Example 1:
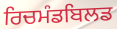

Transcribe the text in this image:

ਰਿਚਮੰਡਬਿਲਡ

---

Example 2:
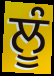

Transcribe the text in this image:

ਲੂੰ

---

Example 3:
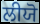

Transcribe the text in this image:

ਲੀਯੋ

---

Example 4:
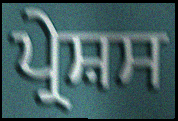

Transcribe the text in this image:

ਪ੍ਰੇਸ਼ਸ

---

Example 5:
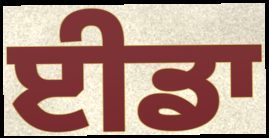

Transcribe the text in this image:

ਈਡਾ